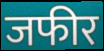
जफीर